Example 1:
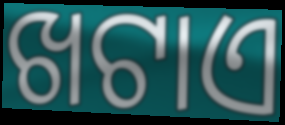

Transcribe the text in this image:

ଖଟାଏ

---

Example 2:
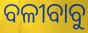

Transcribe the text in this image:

ବଳୀବାବୁ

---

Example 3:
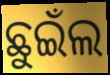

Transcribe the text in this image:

ଛୁଇଁଲ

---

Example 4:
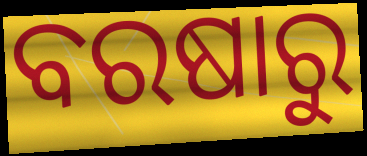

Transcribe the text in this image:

ବରଷାରୁ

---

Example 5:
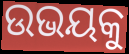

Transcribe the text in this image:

ଉଭୟକୁ